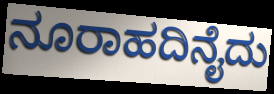
ನೂರಾಹದಿನೈದು